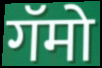
गॅमो